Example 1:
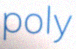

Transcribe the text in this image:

poly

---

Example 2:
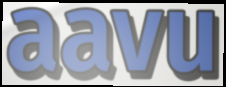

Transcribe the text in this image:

aavu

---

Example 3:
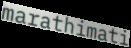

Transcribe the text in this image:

marathimati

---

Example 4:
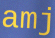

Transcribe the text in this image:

amj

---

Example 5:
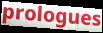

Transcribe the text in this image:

prologues